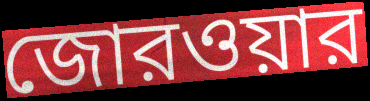
জোরওয়ার